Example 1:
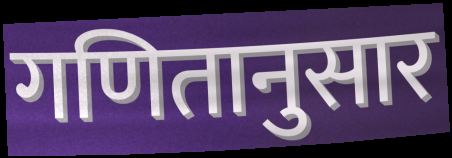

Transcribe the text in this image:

गणितानुसार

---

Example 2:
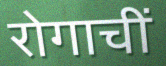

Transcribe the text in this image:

रोगाचीं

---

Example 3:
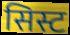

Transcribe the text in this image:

सिस्ट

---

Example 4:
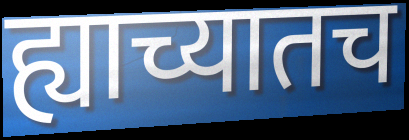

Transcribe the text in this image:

ह्याच्यातच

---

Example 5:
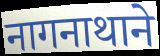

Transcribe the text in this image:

नागनाथाने